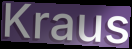
Kraus